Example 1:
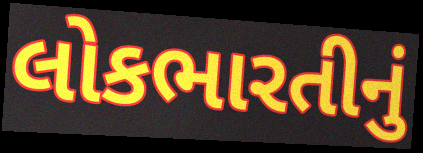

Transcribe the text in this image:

લોકભારતીનું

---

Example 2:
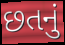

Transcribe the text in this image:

છતનું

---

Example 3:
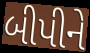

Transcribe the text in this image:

બીપીને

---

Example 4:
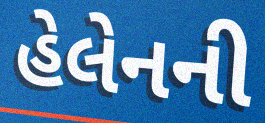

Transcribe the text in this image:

હેલેનની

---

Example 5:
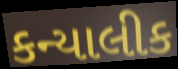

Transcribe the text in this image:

કન્યાલીક